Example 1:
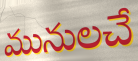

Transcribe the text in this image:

మునులచే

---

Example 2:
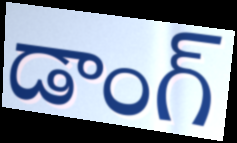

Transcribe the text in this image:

డాంగ్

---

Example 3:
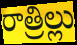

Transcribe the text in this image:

రాత్రిల్లు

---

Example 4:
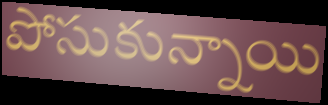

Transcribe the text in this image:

పోసుకున్నాయి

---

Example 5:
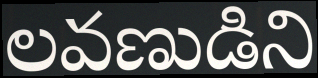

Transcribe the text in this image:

లవణుడిని